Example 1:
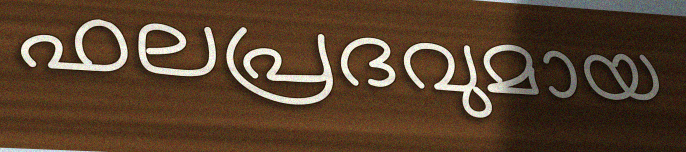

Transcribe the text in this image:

ഫലപ്രദവുമായ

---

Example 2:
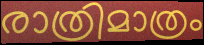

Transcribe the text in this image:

രാത്രിമാത്രം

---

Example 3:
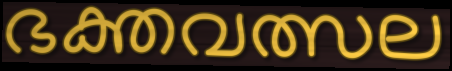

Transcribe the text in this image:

ഭക്തവത്സല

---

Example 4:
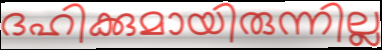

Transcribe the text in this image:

ദഹിക്കുമായിരുന്നില്ല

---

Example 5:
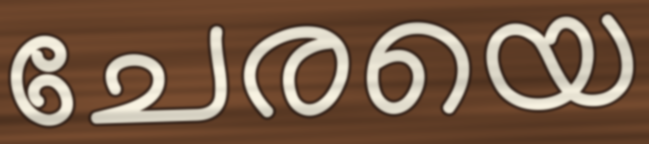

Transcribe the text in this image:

ചേരയെ